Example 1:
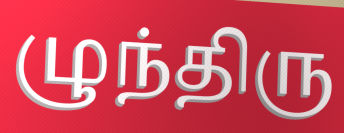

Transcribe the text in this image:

ழுந்திரு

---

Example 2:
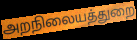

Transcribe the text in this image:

அறநிலையத்துறை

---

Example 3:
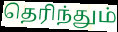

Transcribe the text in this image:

தெரிந்தும்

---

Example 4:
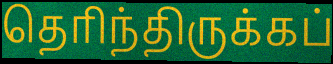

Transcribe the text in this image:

தெரிந்திருக்கப்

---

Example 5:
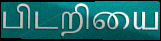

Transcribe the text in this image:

பிடறியை